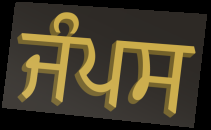
ਜੰਪਸ